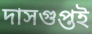
দাসগুপ্তই